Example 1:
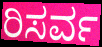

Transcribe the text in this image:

ರಿಸರ್ವ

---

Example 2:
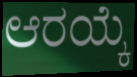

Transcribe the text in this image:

ಆರಯ್ಕೆ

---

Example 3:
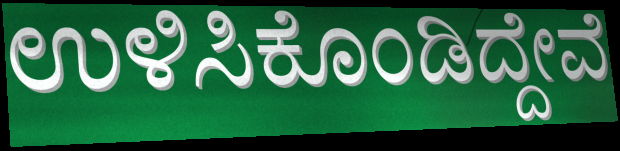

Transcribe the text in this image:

ಉಳಿಸಿಕೊಂಡಿದ್ದೇವೆ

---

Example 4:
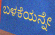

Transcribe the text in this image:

ಬಳಕೆಯನ್ನೇ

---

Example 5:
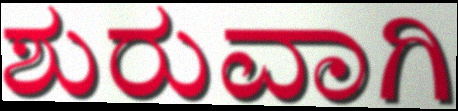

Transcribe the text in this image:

ಶುರುವಾಗಿ